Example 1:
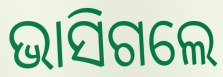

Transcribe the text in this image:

ଭାସିଗଲେ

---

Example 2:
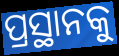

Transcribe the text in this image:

ପ୍ରସ୍ଥାନକୁ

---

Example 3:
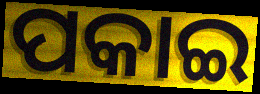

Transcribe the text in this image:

ପକାଇ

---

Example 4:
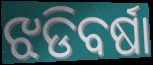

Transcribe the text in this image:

ଝଡିବର୍ଷା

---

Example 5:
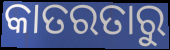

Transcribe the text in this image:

କାତରତାରୁ